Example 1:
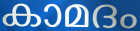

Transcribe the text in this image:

കാമദം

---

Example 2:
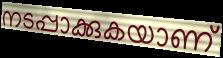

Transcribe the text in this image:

നടപ്പാക്കുകയാണ്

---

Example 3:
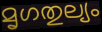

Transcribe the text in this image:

മൃഗതുല്യം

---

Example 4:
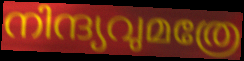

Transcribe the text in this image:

നിന്ദ്യവുമത്രേ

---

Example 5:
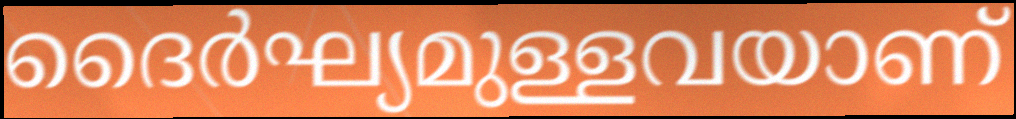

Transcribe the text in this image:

ദൈർഘ്യമുള്ളവയാണ്